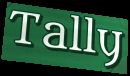
Tally